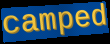
camped